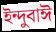
ইন্দুবাঈ